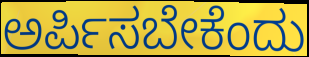
ಅರ್ಪಿಸಬೇಕೆಂದು